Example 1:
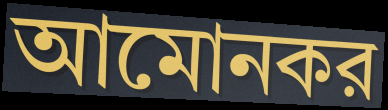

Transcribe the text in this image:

আমোনকর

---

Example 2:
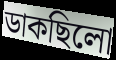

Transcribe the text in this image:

ডাকছিলো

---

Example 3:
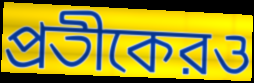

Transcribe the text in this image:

প্রতীকেরও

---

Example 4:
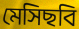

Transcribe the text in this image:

মেসিছবি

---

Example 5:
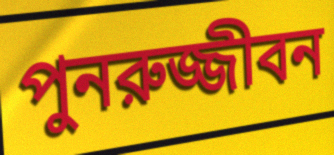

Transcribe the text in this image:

পুনরুজ্জীবন